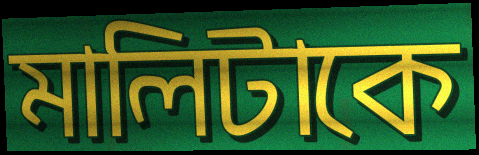
মালিটাকে